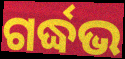
ଗର୍ଦ୍ଧଭ